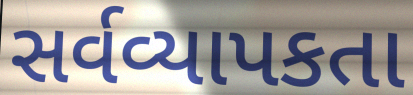
સર્વવ્યાપકતા